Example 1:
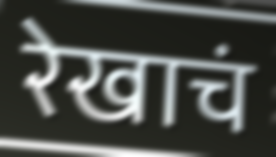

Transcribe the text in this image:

रेखाचं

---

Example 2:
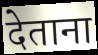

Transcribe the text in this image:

देताना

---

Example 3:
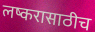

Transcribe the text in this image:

लष्करासाठीच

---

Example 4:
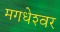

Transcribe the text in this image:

मगधेश्वर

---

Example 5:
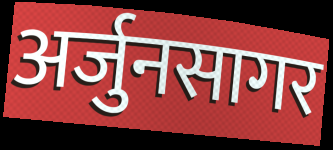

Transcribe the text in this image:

अर्जुनसागर